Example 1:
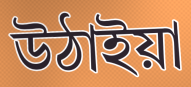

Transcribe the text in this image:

উঠাইয়া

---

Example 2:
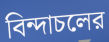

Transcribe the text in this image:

বিন্দাচলের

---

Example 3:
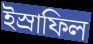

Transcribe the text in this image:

ইস্রাফিল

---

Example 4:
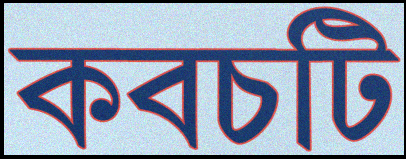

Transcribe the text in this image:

কবচটি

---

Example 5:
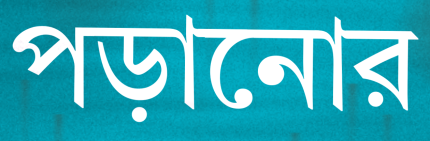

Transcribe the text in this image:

পড়ানোর